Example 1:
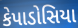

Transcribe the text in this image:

કેપાડોસિયા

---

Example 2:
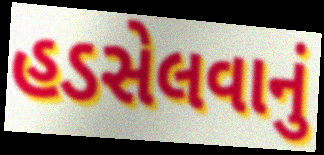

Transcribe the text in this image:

હડસેલવાનું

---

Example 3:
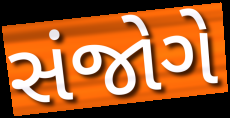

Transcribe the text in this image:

સંજોગે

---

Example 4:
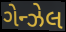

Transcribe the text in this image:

ગેન્ઝેલ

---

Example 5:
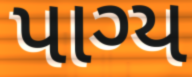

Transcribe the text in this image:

પાગ્ય